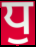
ਧੁ